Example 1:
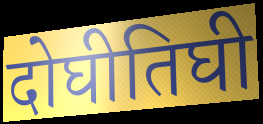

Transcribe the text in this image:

दोघीतिघी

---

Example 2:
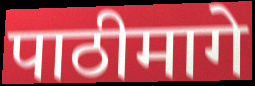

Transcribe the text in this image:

पाठीमागे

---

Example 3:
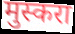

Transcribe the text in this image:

मुस्करा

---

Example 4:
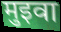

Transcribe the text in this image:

मुइवा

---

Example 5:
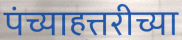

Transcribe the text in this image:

पंच्याहत्तरीच्या